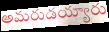
అమరుడయ్యారు